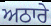
ਅਠਾਰੇ